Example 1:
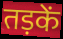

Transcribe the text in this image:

तड़कें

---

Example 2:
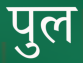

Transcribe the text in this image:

पुल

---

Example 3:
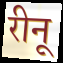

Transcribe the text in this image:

रीनू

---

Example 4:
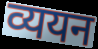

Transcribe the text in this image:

व्ययन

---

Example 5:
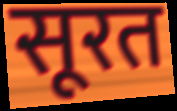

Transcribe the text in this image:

सूरत